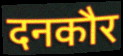
दनकौर